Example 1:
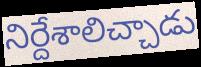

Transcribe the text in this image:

నిర్దేశాలిచ్చాడు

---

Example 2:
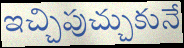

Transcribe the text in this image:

ఇచ్చిపుచ్చుకునే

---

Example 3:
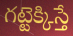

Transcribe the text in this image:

గట్టెక్కిస్తే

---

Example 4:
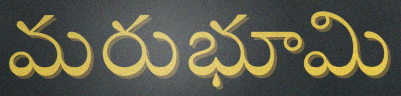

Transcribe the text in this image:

మరుభూమి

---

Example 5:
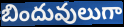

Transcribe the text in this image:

బిందువులుగా